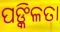
ପଙ୍କିଳତା